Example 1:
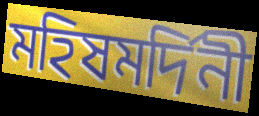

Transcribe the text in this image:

মহিষমর্দিনী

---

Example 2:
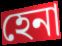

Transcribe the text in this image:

হেনা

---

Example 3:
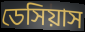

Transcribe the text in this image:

ডেসিয়াস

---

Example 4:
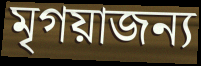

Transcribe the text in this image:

মৃগয়াজন্য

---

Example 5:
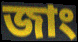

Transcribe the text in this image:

জাং